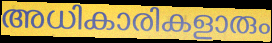
അധികാരികളാരും